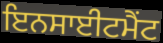
ਇਨਸਾਈਟਮੈਂਟ